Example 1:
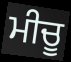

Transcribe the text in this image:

ਮੀਚੂ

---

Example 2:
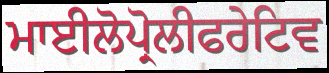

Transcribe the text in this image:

ਮਾਈਲੋਪ੍ਰੋਲੀਫਰੇਟਿਵ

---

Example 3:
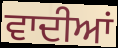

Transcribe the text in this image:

ਵਾਦੀਆਂ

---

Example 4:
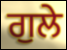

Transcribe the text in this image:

ਗੁਲੇ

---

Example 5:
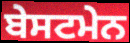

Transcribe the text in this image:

ਬੇਸਟਮੇਨ